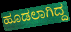
ಹೂಡಲಾಗಿದ್ದ